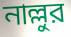
নাল্লুর